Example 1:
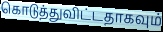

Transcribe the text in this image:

கொடுத்துவிட்டதாகவும்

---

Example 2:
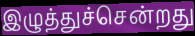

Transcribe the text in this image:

இழுத்துச்சென்றது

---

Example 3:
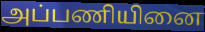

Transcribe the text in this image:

அப்பணியினை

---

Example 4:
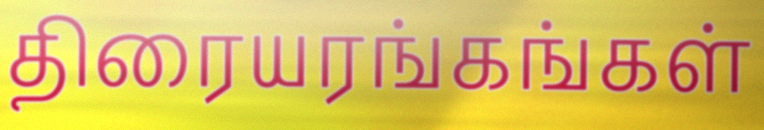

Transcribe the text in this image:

திரையரங்கங்கள்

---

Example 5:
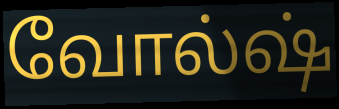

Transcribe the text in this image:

வோல்ஷ்